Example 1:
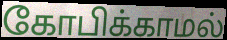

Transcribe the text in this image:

கோபிக்காமல்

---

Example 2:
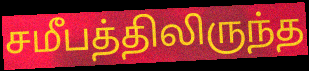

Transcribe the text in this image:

சமீபத்திலிருந்த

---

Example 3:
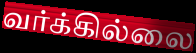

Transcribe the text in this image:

வர்க்கில்லை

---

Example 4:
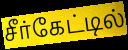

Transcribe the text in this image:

சீர்கேட்டில்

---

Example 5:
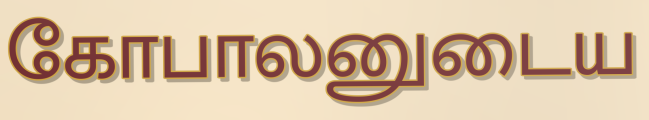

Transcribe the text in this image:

கோபாலனுடைய